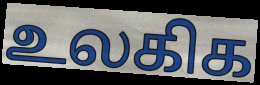
உலகிக